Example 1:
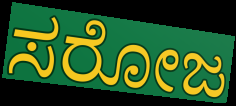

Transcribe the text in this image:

ಸರೋಜ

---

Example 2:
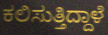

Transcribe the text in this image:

ಕಲಿಸುತ್ತಿದ್ದಾಳೆ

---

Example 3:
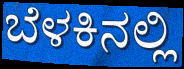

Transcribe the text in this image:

ಬೆಳಕಿನಲ್ಲಿ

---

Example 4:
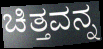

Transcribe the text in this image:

ಚಿತ್ತವನ್ನ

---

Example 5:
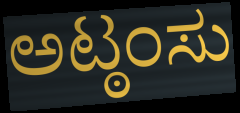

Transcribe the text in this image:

ಅಟ್ಠಂಸು